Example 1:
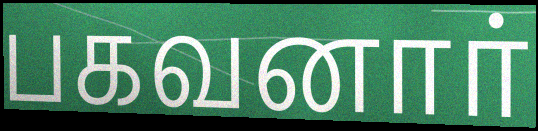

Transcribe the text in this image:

பகவனார்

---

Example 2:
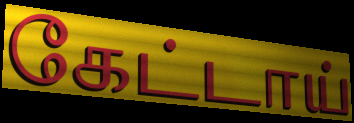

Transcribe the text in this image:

கேட்டாய்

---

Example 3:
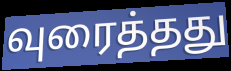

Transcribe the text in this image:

வுரைத்தது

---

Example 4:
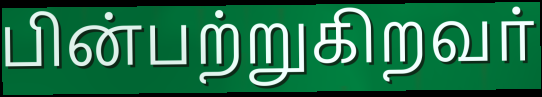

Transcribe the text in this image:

பின்பற்றுகிறவர்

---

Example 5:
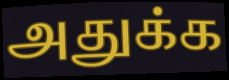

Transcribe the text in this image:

அதுக்க